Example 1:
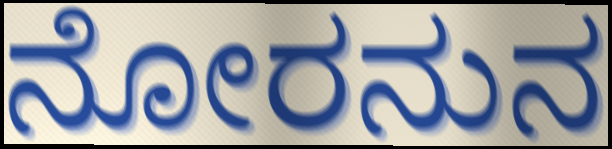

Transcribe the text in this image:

ನೋರನುನ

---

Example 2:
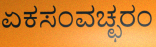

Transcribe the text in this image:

ಏಕಸಂವಚ್ಛರಂ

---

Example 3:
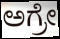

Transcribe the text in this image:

ಅಗ್ರೇ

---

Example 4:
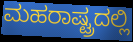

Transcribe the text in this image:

ಮಹರಾಷ್ಟ್ರದಲ್ಲಿ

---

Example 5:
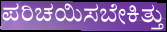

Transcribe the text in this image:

ಪರಿಚಯಿಸಬೇಕಿತ್ತು